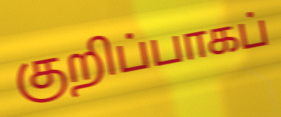
குறிப்பாகப்